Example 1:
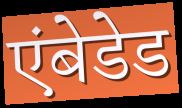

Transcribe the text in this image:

एंबेडेड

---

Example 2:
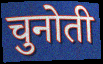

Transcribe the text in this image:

चुनोती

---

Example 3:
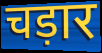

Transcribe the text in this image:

चड़ार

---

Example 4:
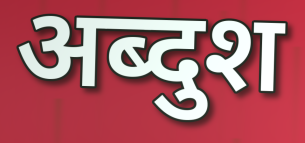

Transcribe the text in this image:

अब्दुश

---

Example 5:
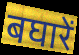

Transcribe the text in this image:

बघारें